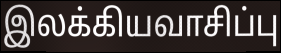
இலக்கியவாசிப்பு